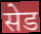
सेड